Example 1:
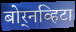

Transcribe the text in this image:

बोर्नव्हिटा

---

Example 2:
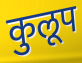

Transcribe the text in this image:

कुलूप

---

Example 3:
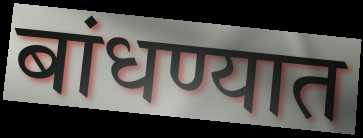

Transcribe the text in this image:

बांधण्‍यात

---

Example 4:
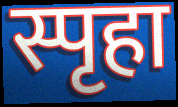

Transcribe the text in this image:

स्पृहा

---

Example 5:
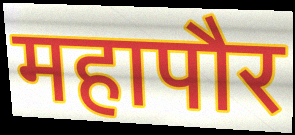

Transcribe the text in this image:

महापौर